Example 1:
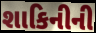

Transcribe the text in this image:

શાકિનીની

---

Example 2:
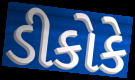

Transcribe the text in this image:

ડીકોકે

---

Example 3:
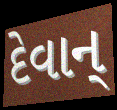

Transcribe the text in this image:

દેવાન્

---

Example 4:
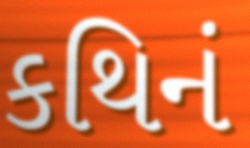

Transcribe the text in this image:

કથિનં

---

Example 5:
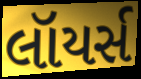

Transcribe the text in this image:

લૉયર્સ